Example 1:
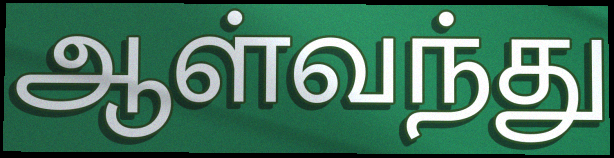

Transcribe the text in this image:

ஆள்வந்து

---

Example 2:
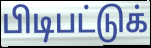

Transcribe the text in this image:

பிடிபட்டுக்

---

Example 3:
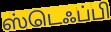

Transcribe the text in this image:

ஸ்டெஃப்பி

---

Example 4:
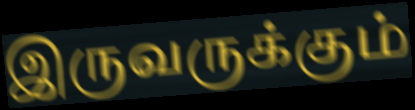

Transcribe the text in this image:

இருவருக்கும்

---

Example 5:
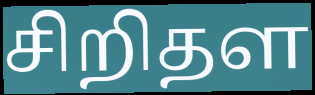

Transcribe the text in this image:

சிறிதள